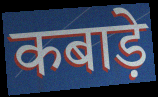
कबाड़े